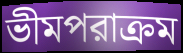
ভীমপরাক্রম